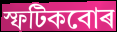
স্ফটিকবোৰ